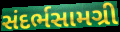
સંદર્ભસામગ્રી